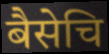
बैसेचि